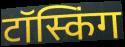
टॉस्किंग